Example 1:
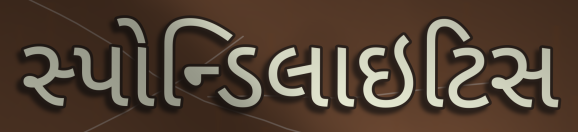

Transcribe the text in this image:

સ્પોન્ડિલાઇટિસ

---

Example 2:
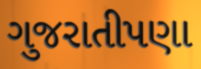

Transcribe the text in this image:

ગુજરાતીપણા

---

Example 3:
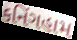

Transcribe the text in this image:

કનિંગહામ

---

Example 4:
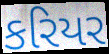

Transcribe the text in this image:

કરિયર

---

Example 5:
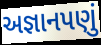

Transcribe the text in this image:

અજ્ઞાનપણું